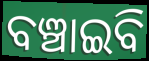
ବଞ୍ଚାଇବି